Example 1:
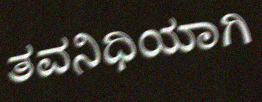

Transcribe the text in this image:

ತವನಿಧಿಯಾಗಿ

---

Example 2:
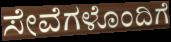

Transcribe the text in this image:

ಸೇವೆಗಳೊಂದಿಗೆ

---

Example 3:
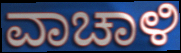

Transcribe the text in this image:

ವಾಚಾಳಿ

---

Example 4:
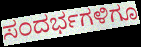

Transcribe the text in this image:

ಸಂದರ್ಭಗಳಿಗೂ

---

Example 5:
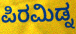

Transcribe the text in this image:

ಪಿರಮಿಡ್ನ